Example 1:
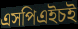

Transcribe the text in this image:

এসপিএইচই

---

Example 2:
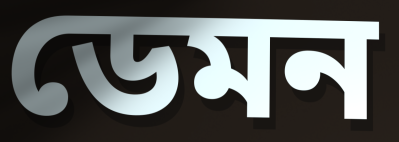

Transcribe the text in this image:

ডেমন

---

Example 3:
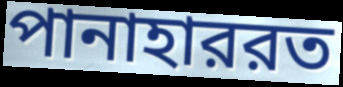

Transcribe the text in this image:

পানাহাররত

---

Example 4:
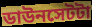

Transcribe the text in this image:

ডাউনসেটটা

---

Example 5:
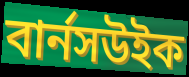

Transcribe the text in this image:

বার্নসউইক